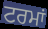
ਟਰਮਾਂ